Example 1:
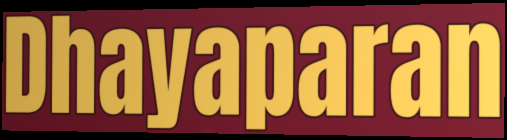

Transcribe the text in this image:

Dhayaparan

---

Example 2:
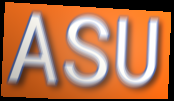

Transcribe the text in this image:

ASU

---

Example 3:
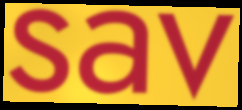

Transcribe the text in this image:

sav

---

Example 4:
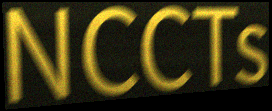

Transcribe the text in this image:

NCCTs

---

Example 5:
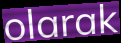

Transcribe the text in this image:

olarak